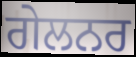
ਗੇਲਨਰ